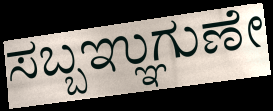
ಸಬ್ಬಞ್ಞುಗುಣೇ